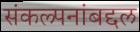
संकल्पनांबद्दल